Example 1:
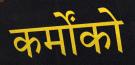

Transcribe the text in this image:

कर्मोंको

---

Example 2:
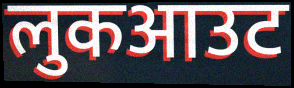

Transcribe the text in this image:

लुकआउट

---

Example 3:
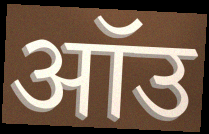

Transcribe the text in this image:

ऑउ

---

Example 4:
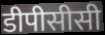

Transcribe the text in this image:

डीपीसीसी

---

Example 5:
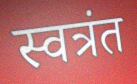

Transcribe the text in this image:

स्वत्रंत